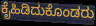
ಕೈಹಿಡಿದುಕೊಂಡರು